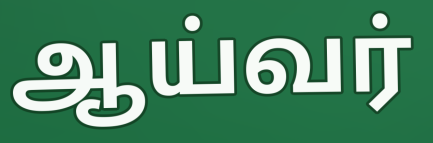
ஆய்வர்